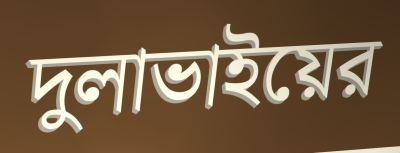
দুলাভাইয়ের